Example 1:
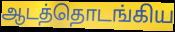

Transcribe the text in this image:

ஆடத்தொடங்கிய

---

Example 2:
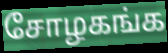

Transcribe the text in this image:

சோழகங்க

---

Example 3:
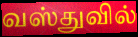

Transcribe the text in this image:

வஸ்துவில்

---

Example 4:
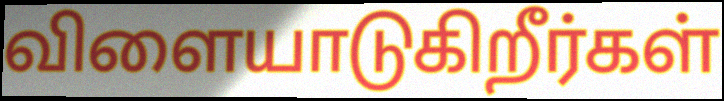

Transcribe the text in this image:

விளையாடுகிறீர்கள்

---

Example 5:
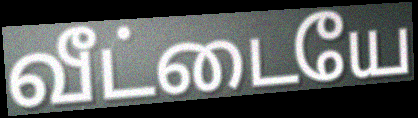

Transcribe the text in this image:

வீட்டையே